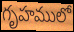
గృహములో